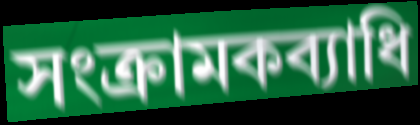
সংক্রামকব্যাধি